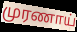
முரணாய்